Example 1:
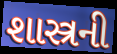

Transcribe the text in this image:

શાસ્ત્રની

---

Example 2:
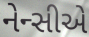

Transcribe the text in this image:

નેન્સીએ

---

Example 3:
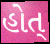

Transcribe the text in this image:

હોત્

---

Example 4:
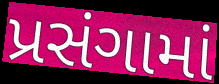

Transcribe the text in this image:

પ્રસંગામાં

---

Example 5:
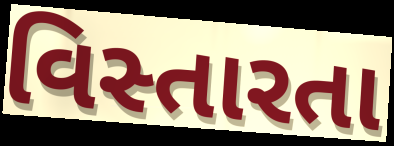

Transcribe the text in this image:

વિસ્તારતા